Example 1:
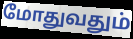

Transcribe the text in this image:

மோதுவதும்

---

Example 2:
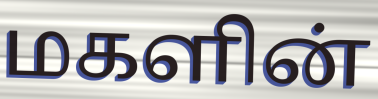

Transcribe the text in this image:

மகளின்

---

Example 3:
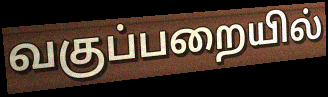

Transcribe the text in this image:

வகுப்பறையில்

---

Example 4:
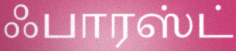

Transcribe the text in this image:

ஃபாரஸ்ட்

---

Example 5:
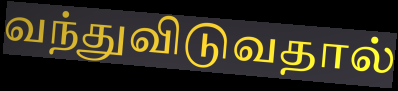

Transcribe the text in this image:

வந்துவிடுவதால்